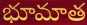
భూమాత